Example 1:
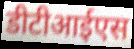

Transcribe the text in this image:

डीटीआईएस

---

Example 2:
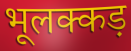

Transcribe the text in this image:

भूलक्कड़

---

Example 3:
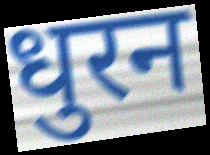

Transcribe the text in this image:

धुरन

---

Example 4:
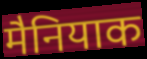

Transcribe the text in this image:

मैनियाक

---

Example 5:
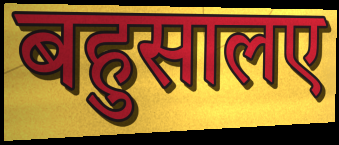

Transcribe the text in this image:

बहुसालए